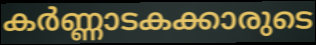
കർണ്ണാടകക്കാരുടെ